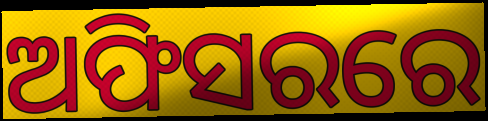
ଅଫିସରରେ